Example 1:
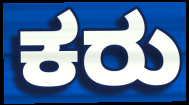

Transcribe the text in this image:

ಕರು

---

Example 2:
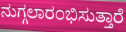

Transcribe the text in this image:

ನುಗ್ಗಲಾರಂಭಿಸುತ್ತಾರೆ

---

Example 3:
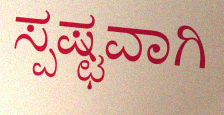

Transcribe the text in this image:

ಸ್ಪಷ್ಟವಾಗಿ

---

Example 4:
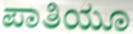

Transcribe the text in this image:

ಪಾತಿಯೂ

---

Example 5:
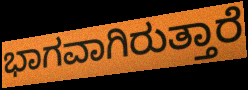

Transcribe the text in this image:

ಭಾಗವಾಗಿರುತ್ತಾರೆ